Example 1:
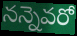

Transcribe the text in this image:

నన్నెవరో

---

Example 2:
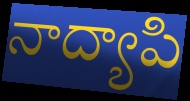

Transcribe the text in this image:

నాద్యాపి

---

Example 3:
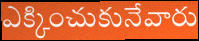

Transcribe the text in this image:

ఎక్కించుకునేవారు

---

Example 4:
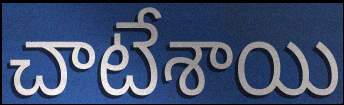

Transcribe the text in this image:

చాటేశాయి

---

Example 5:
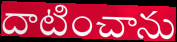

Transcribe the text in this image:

దాటించాను